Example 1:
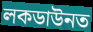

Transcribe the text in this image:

লকডাউনত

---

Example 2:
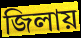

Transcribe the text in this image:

জিলায়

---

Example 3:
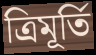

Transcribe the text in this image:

ত্ৰিমূৰ্তি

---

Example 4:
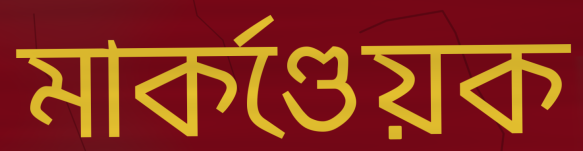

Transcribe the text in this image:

মাৰ্কণ্ডেয়ক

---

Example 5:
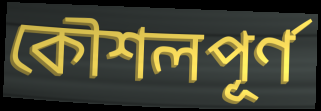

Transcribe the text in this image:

কৌশলপূৰ্ণ